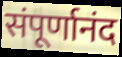
संपूर्णानंद